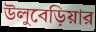
উলুবেড়িয়ার